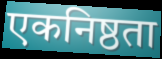
एकनिष्ठता